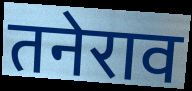
तनेराव